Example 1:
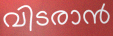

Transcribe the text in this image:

വിടരാൻ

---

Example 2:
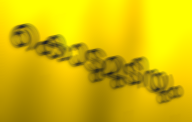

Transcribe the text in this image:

കൊടുമുടിയും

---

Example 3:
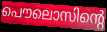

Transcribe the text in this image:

പൌലൊസിന്റെ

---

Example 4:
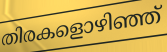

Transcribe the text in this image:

തിരകളൊഴിഞ്ഞ്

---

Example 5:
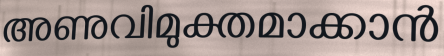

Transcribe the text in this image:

അണുവിമുക്തമാക്കാൻ